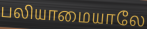
பலியாமையாலே